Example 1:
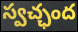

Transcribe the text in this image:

స్వచ్ఛంద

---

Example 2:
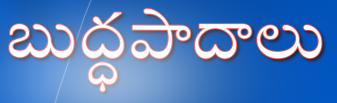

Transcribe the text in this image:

బుద్ధపాదాలు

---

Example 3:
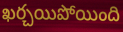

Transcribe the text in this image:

ఖర్చయిపోయింది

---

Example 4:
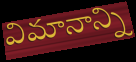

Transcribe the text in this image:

విమానాన్ని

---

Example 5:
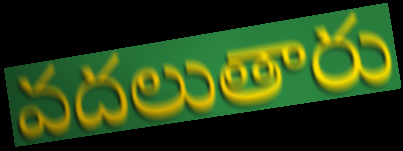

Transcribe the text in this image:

వదలుతారు